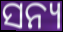
ସନ୍ୟ